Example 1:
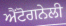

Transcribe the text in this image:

ਐਂਟੋਗਨੇਲੀ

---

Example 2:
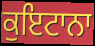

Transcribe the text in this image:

ਕੁਇਟਾਨਾ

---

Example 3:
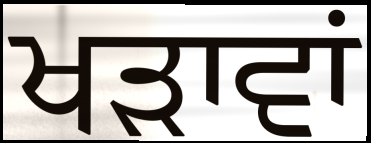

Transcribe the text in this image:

ਖੜਾਵਾਂ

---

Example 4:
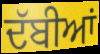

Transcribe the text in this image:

ਦੱਬੀਆਂ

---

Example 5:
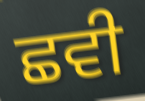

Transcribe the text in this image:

ਛਵੀ